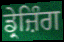
ਡ੍ਰੇਜ਼ਿੰਗ